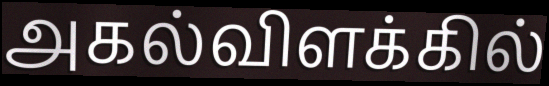
அகல்விளக்கில்